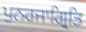
ਪੁਨਰਜਾਗ੍ਰਿਤਿ